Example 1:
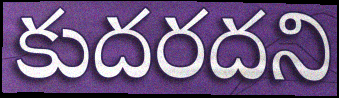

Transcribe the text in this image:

కుదరదని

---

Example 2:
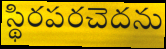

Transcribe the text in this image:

స్థిరపరచెదను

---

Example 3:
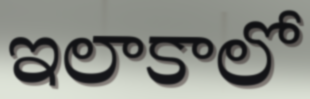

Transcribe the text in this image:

ఇలాకాలో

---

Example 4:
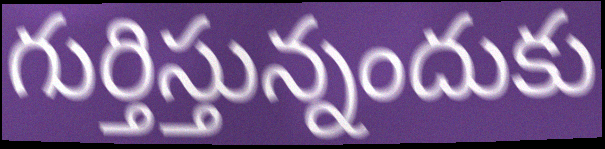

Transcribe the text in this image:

గుర్తిస్తున్నందుకు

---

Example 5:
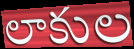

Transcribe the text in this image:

లాకుల